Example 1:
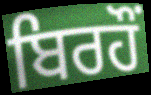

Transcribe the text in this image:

ਬਿਰਹੌਂ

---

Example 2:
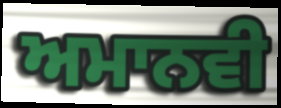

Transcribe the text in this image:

ਅਮਾਨਵੀ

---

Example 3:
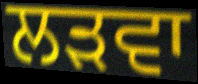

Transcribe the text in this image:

ਲੜਵਾ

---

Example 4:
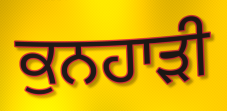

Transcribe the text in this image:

ਕੁਨਹਾੜੀ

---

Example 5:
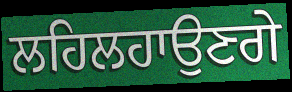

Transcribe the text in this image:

ਲਹਿਲਹਾਉਣਗੇ